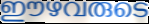
ഈഴവരുടെ